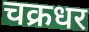
चक्रधर